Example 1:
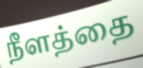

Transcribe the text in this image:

நீளத்தை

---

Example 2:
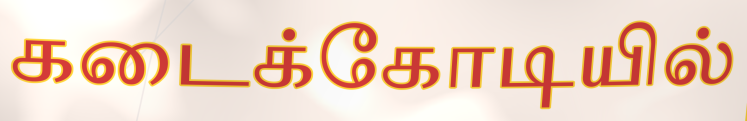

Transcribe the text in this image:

கடைக்கோடியில்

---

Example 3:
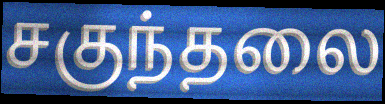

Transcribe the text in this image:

சகுந்தலை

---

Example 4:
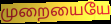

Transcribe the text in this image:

முறையையே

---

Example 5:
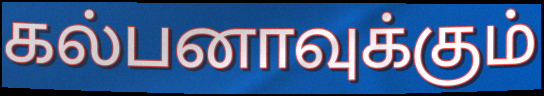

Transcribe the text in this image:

கல்பனாவுக்கும்